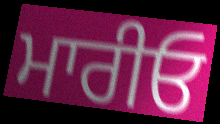
ਮਾਰੀਓ